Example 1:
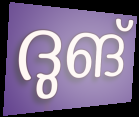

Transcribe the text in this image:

ദുങ്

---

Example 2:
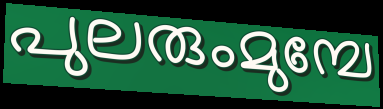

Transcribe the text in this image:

പുലരുംമുമ്പേ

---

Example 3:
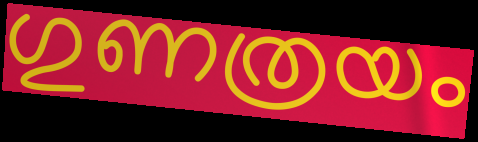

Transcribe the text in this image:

ഗുണത്രയം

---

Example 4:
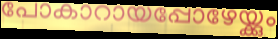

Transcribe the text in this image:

പോകാറായപ്പോഴേയ്ക്കും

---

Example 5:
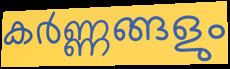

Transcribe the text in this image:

കർണ്ണങ്ങളും